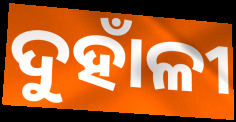
ଦୁହାଁଳୀ